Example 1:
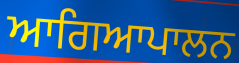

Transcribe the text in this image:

ਆਗਿਆਪਾਲਨ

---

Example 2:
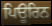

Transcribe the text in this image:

ਪਿਊਰਿਨ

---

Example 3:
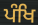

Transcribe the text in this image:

ਪੰਖਿ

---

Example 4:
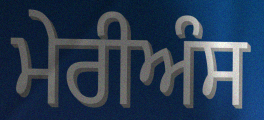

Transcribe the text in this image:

ਮੇਰੀਅੰਸ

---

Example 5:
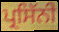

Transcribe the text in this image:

ਪ੍ਰਸਿੱਨੀ